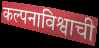
कल्पनाविश्वाची